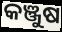
କଞ୍ଜୁଷ